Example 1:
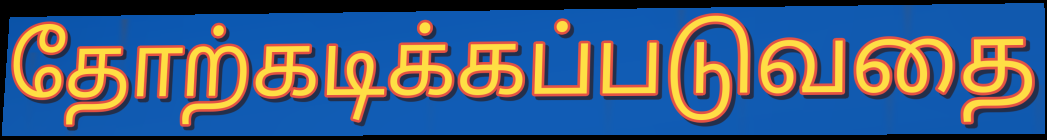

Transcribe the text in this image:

தோற்கடிக்கப்படுவதை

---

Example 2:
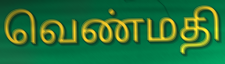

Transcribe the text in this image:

வெண்மதி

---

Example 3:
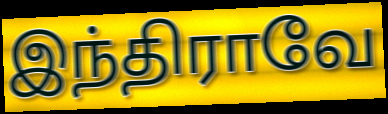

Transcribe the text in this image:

இந்திராவே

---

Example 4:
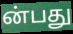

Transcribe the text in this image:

ன்பது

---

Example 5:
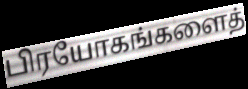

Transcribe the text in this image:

பிரயோகங்களைத்